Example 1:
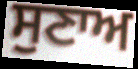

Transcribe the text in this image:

ਸੁਣਾਅ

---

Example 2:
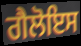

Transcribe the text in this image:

ਗੈਲੋਇਸ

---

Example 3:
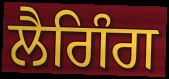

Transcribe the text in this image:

ਲੈਗਿੰਗ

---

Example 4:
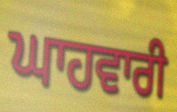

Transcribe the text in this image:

ਘਾਹਵਾਰੀ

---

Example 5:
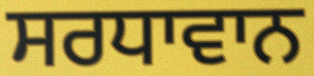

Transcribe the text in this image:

ਸਰਧਾਵਾਨ